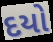
દયો